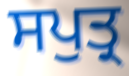
ਸਪੁਤ੍ਰ